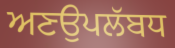
ਅਣਉਪਲੱਬਧ